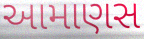
આમાણસ